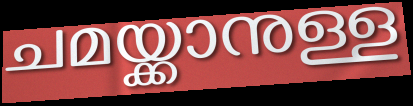
ചമയ്ക്കാനുള്ള